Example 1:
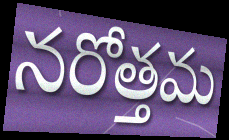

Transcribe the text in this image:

నరోత్తమ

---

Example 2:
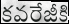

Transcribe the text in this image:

కవరేజీకి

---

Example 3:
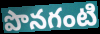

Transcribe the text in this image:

పొనగంటి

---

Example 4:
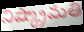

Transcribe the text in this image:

నిష్క్రామతి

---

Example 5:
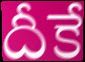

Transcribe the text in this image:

దీకే